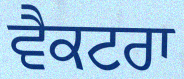
ਵੈਕਟਰਾ